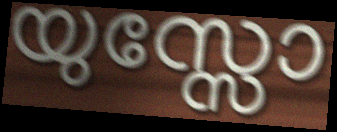
യുസ്സോ